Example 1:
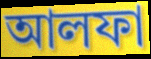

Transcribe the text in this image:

আলফা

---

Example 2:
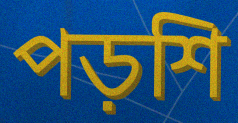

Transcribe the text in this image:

পড়শি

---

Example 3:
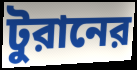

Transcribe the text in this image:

টুরানের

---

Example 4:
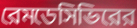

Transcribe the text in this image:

রেমডেসিভিরের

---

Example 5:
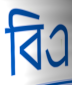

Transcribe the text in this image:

বিএ